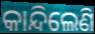
କାନ୍ଦିଲେଣି